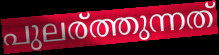
പുലര്ത്തുന്നത്